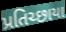
પ્રતિચ્છાયા